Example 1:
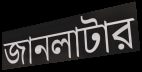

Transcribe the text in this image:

জানলাটার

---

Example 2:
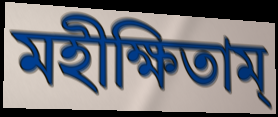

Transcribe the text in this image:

মহীক্ষিতাম্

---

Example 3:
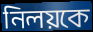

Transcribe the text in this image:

নিলয়কে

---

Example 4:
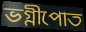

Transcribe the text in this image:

ভগ্নীপোত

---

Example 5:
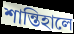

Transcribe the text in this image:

শান্তিহালে